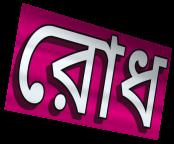
রোধ